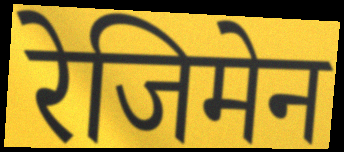
रेजिमेन